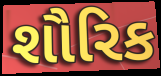
શૌરિક